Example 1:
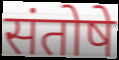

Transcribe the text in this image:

संतोषे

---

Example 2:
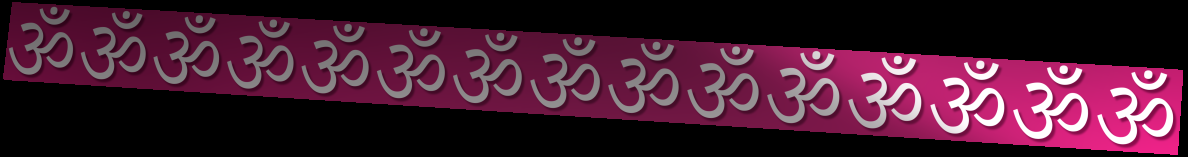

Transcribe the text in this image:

ॐॐॐॐॐॐॐॐॐॐॐॐॐॐॐ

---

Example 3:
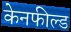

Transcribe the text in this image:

केनफील्ड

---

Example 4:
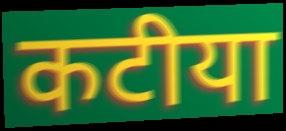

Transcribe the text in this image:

कटीया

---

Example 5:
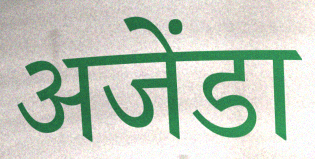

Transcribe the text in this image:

अजेंडा